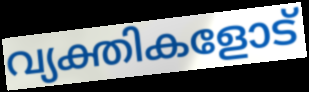
വ്യക്തികളോട്